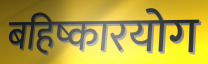
बहिष्कारयोग